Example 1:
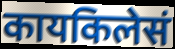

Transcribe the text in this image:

कायकिलेसं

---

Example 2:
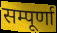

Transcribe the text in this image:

सम्पूर्णा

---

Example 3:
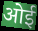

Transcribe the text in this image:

ओई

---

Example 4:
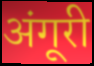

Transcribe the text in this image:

अंगूरी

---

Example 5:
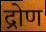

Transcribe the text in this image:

द्रोण